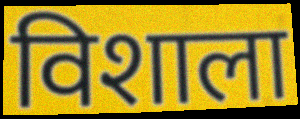
विशाला